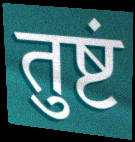
तुष्टं